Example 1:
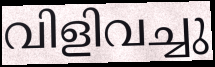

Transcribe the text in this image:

വിളിവച്ചു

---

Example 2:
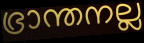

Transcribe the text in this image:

ഭ്രാന്തനല്ല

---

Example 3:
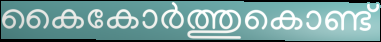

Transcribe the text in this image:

കൈകോർത്തുകൊണ്ട്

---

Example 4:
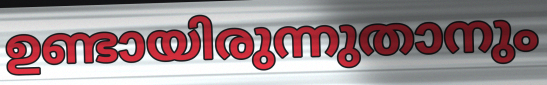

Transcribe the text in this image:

ഉണ്ടായിരുന്നുതാനും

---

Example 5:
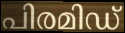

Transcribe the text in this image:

പിരമിഡ്